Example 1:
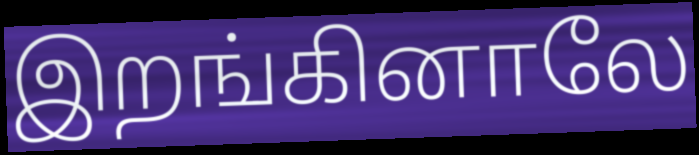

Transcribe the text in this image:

இறங்கினாலே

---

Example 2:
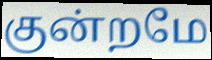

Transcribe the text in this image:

குன்றமே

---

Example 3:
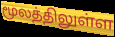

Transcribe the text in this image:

மூலத்திலுள்ள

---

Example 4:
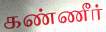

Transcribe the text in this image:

கண்ணீர்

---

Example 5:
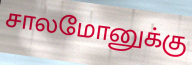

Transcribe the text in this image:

சாலமோனுக்கு